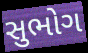
સુભોગ